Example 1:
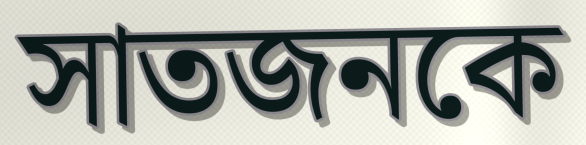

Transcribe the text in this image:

সাতজনকে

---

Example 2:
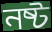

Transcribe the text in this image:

নষ্ট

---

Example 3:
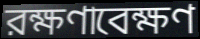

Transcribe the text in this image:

রক্ষণাবেক্ষণ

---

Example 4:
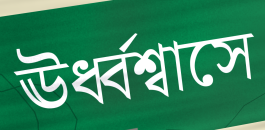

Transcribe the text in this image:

ঊর্ধ্বশ্বাসে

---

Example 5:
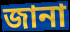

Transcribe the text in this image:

জানা